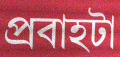
প্রবাহটা